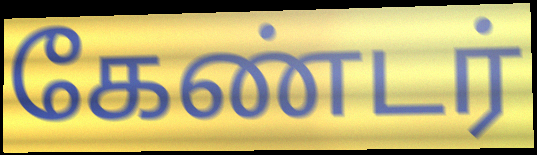
கேண்டர்